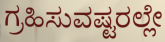
ಗ್ರಹಿಸುವಷ್ಟರಲ್ಲೇ